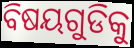
ବିଷୟଗୁଡିକୁ